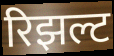
रिझल्ट